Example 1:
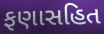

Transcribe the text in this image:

ફણાસહિત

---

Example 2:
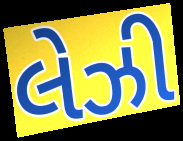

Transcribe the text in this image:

લેઝી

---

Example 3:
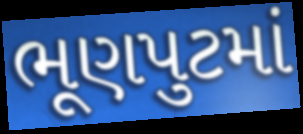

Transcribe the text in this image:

ભૂણપુટમાં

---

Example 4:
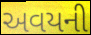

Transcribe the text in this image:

અવયની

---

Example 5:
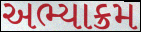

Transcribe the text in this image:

અભ્યાક્રમ